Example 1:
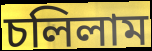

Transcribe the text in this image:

চলিলাম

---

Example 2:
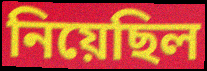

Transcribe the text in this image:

নিয়েছিল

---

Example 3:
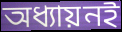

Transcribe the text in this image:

অধ্যায়নই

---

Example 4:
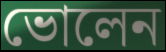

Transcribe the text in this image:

ভোলেন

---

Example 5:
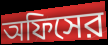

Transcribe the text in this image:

অফিসের